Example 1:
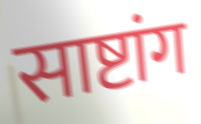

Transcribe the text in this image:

साष्टांग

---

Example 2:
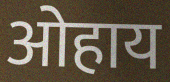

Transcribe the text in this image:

ओहाय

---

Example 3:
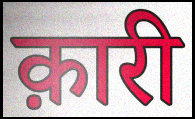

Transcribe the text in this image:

क़ारी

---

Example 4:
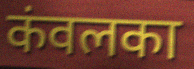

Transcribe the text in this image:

कंवलका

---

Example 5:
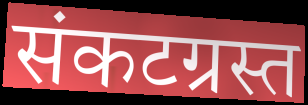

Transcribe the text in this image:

संकटग्रस्त